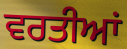
ਵਰਤੀਆਂ